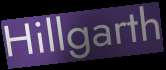
Hillgarth